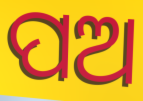
ପଅ